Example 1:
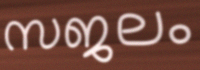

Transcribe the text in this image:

സജലം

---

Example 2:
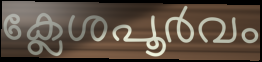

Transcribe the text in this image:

ക്ലേശപൂർവം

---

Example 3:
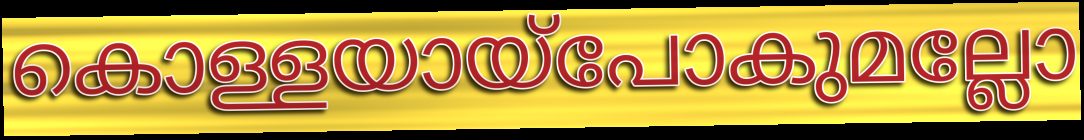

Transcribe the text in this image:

കൊള്ളയായ്പോകുമല്ലോ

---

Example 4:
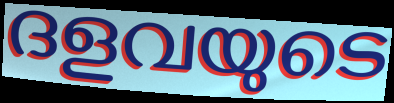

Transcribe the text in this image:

ദളവയുടെ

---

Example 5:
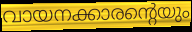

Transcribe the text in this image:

വായനക്കാരന്റെയും